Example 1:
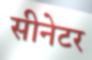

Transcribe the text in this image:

सीनेटर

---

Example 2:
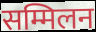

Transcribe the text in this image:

सम्मिलन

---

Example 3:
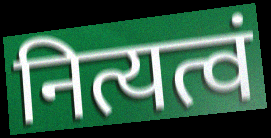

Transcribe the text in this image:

नित्यत्वं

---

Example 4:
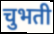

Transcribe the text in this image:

चुभती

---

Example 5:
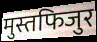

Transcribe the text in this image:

मुस्तफिजुर